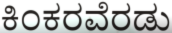
ಕಿಂಕರವೆರಡು